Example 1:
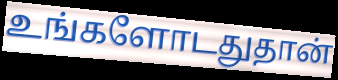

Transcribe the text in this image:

உங்களோடதுதான்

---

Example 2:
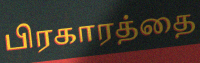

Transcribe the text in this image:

பிரகாரத்தை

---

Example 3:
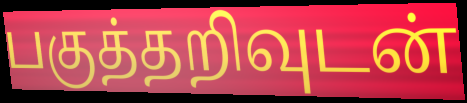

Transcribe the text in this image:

பகுத்தறிவுடன்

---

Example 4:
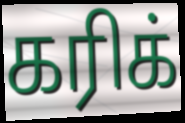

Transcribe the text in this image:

கரிக்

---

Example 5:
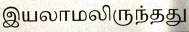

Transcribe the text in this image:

இயலாமலிருந்தது